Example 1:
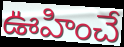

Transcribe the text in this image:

ఊహించే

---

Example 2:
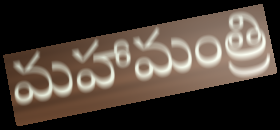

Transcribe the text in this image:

మహామంత్రి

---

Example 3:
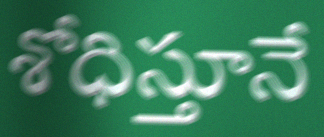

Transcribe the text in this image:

శోధిస్తూనే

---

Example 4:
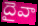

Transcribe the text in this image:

దైవా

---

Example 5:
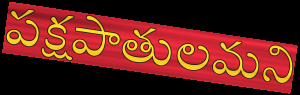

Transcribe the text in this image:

పక్షపాతులమని